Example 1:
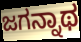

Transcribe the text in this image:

ಜಗನ್ನಾಥ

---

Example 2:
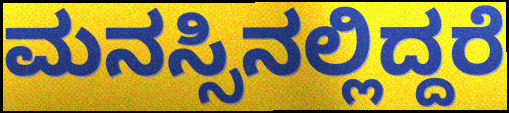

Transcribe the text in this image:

ಮನಸ್ಸಿನಲ್ಲಿದ್ದರೆ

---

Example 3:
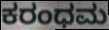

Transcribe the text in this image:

ಕರಂಧಮ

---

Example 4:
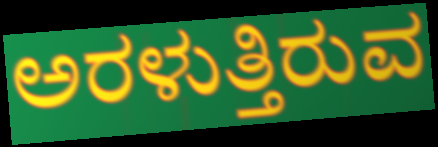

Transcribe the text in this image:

ಅರಳುತ್ತಿರುವ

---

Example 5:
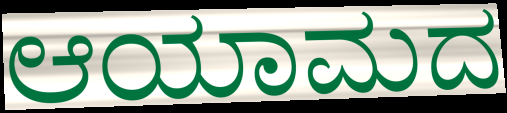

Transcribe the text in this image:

ಆಯಾಮದ